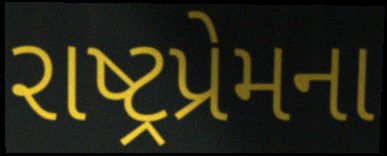
રાષ્ટ્રપ્રેમના